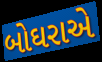
બોઘરાએ